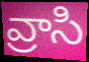
వ్రాసి